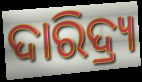
ଦାରିଦ୍ର୍ୟ